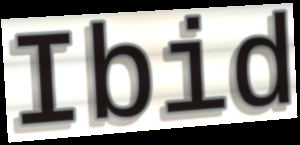
Ibid